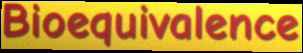
Bioequivalence